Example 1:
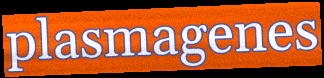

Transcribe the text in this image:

plasmagenes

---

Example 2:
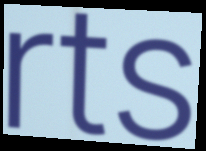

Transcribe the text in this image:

rts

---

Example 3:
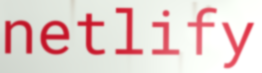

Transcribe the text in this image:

netlify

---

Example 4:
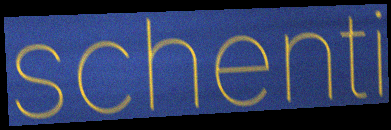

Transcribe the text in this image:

schenti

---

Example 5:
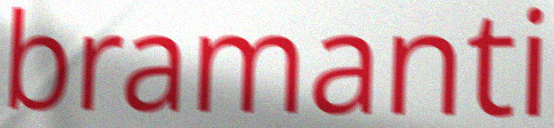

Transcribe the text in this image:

bramanti